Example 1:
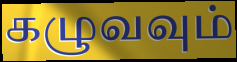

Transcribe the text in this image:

கழுவவும்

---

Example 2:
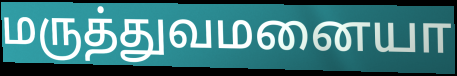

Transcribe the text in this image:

மருத்துவமனையா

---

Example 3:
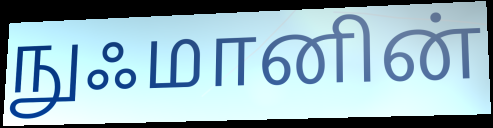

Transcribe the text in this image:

நுஃமானின்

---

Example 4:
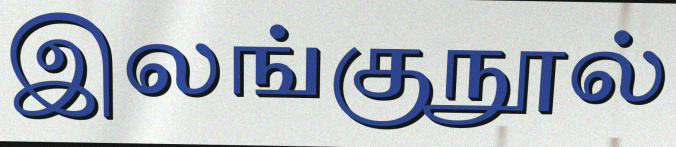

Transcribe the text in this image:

இலங்குநூல்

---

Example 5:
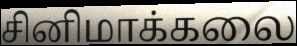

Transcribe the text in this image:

சினிமாக்கலை